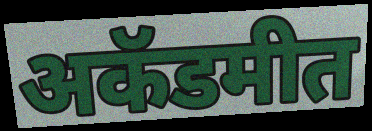
अकॅडमीत